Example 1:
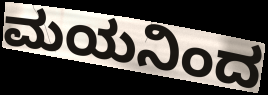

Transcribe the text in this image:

ಮಯನಿಂದ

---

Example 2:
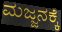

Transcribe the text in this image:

ಮಜ್ಜನಕ್ಕೆ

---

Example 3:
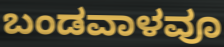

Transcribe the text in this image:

ಬಂಡವಾಳವೂ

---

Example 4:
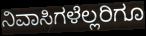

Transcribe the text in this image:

ನಿವಾಸಿಗಳೆಲ್ಲರಿಗೂ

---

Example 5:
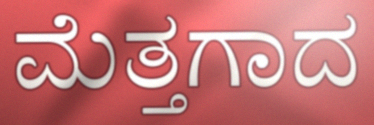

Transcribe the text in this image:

ಮೆತ್ತಗಾದ